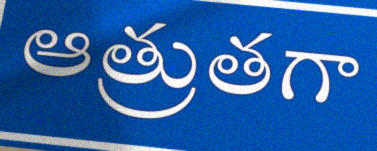
ఆత్రుతగా